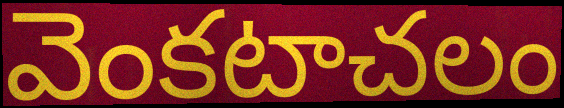
వెంకటాచలం